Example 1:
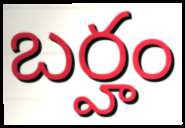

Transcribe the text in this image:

బర్హం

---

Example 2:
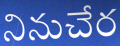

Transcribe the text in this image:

నినుచేర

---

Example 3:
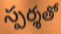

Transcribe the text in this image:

స్పర్శతో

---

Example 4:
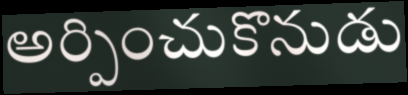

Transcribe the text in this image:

అర్పించుకొనుడు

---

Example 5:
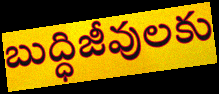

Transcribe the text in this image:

బుద్ధిజీవులకు